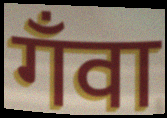
गँवा